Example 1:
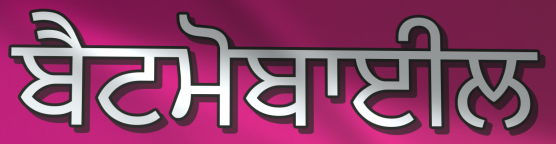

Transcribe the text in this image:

ਬੈਟਮੋਬਾਈਲ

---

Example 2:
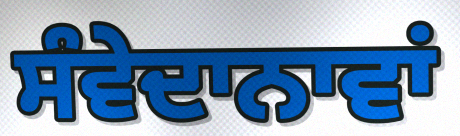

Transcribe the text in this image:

ਸੰਵੇਦਾਨਾਵਾਂ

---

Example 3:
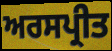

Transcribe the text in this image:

ਅਰਸਪ੍ਰੀਤ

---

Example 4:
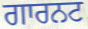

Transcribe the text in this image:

ਗਾਰਨਟ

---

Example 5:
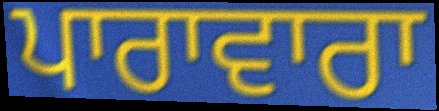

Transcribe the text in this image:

ਪਾਰਾਵਾਰਾ